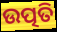
ଉତ୍ପତି